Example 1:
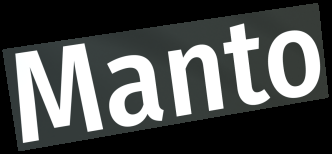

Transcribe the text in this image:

Manto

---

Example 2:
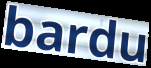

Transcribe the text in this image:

bardu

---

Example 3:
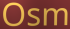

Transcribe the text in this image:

Osm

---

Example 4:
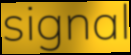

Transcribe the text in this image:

signal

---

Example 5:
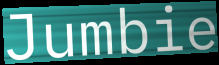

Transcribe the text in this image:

Jumbie